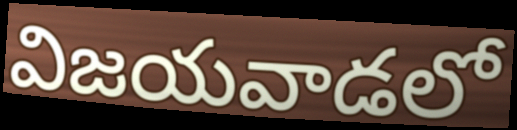
విజయవాడలో